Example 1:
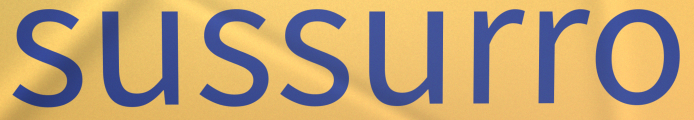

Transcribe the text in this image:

sussurro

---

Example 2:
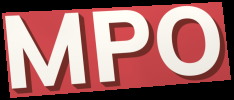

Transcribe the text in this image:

MPO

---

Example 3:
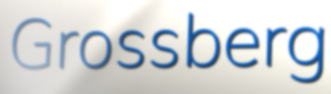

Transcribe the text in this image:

Grossberg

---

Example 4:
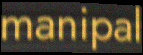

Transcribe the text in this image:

manipal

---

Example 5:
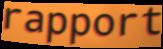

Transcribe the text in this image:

rapport